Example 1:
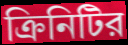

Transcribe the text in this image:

ক্রিনিটির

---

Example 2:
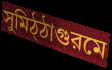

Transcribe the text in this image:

সুমিঠ্ঠাগুরমে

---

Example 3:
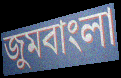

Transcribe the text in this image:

জুমবাংলা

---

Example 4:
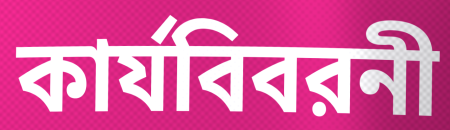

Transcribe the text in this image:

কার্যবিবরনী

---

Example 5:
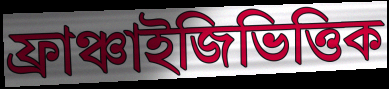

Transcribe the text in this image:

ফ্রাঞ্চাইজিভিত্তিক